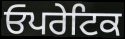
ਓਪਰੇਟਿਕ